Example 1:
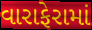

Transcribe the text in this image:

વારાફેરામાં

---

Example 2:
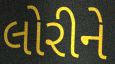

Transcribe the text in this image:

લોરીને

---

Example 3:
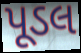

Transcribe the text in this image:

પૂડલ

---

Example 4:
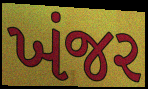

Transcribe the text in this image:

ખંજર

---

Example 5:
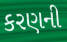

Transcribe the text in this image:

કરણની